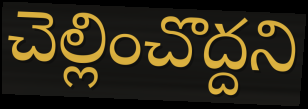
చెల్లించొద్దని